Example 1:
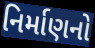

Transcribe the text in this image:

નિર્માણનો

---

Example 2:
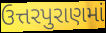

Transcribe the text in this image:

ઉત્તરપુરાણમાં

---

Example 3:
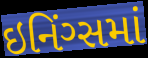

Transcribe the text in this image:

ઇનિંગ્સમાં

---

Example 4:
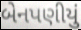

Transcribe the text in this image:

બેનપણીયું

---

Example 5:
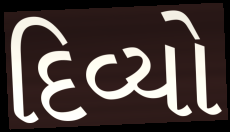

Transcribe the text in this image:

દિવ્યો